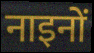
नाइनों